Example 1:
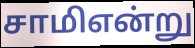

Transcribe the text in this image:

சாமிஎன்று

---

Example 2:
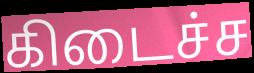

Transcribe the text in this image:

கிடைச்ச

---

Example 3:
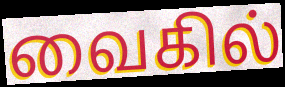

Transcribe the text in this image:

வைகில்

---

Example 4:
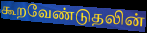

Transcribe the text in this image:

கூறவேண்டுதலின்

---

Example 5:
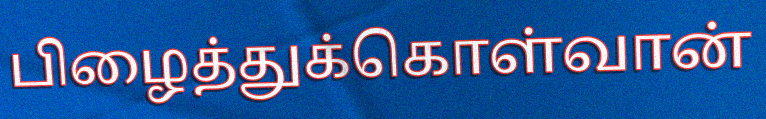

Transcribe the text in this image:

பிழைத்துக்கொள்வான்